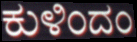
ಕುಳಿಂದಂ